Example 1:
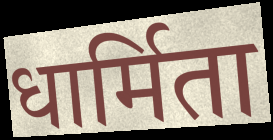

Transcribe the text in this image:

धार्मिता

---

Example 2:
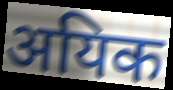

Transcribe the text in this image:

अयिक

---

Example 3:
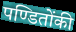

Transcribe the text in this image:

पण्डितोंकी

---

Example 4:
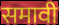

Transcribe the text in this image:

समावी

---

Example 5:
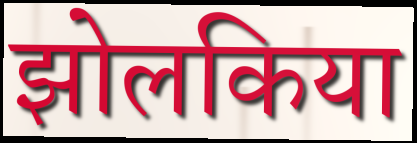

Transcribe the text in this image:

झोलकिया